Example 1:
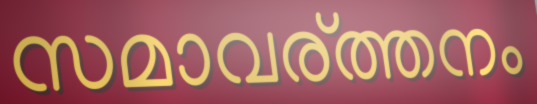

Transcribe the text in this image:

സമാവര്ത്തനം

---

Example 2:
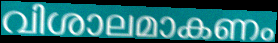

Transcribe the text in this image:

വിശാലമാകണം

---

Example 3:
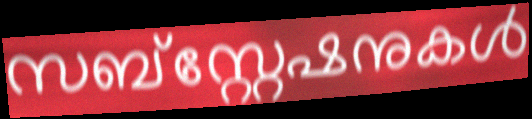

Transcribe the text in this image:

സബ്സ്റ്റേഷനുകൾ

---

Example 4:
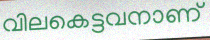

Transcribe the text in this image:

വിലകെട്ടവനാണ്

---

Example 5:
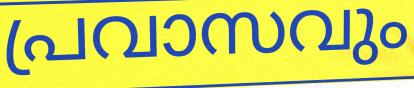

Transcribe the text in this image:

പ്രവാസവും